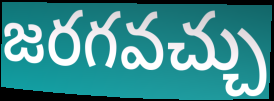
జరగవచ్చు